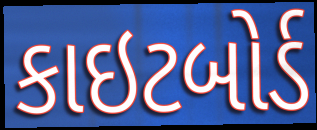
કાઇટબોર્ડ